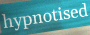
hypnotised